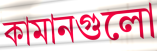
কামানগুলো